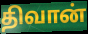
திவான்